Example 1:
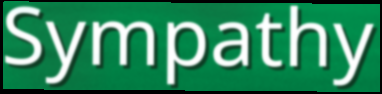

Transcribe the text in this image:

Sympathy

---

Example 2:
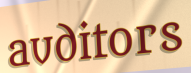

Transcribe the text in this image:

auditors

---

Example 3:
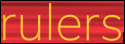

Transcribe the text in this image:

rulers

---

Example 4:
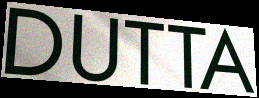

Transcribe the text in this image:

DUTTA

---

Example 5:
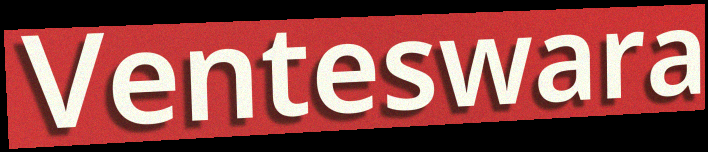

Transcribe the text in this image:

Venteswara